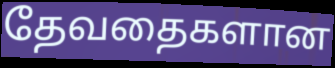
தேவதைகளான